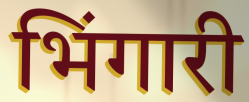
भिंगारी